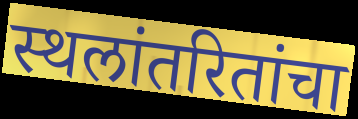
स्थलांतरितांचा